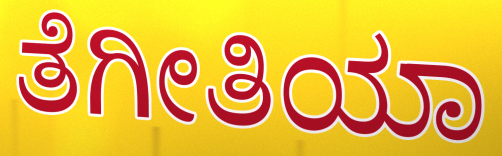
ತೆಗೀತಿಯಾ